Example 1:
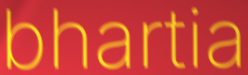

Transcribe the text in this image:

bhartia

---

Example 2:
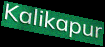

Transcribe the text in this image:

Kalikapur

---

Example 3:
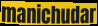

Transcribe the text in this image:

manichudar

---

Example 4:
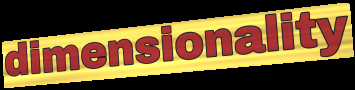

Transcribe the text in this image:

dimensionality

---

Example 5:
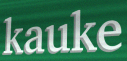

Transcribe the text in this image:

kauke